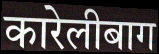
कारेलीबाग